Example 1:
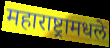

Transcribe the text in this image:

महाराष्ट्रामधले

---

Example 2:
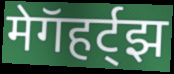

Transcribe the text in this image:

मेगॅहर्ट्‌झ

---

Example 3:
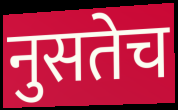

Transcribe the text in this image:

नुसतेच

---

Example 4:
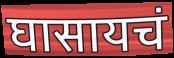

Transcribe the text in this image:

घासायचं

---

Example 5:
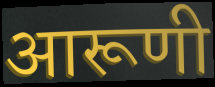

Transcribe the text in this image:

आरूणी